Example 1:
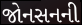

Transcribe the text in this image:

જોનસનની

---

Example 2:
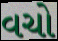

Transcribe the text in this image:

વચો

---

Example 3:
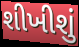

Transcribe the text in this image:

શીખીશું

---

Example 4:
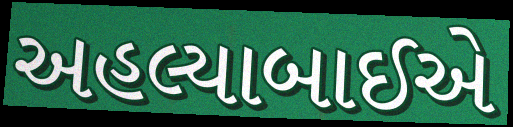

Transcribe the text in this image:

અહલ્યાબાઈએ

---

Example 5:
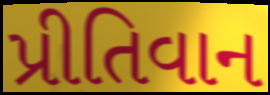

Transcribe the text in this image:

પ્રીતિવાન